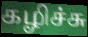
கழிச்சு